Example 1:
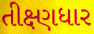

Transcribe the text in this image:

તીક્ષ્ણધાર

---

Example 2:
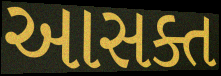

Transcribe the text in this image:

આસક્ત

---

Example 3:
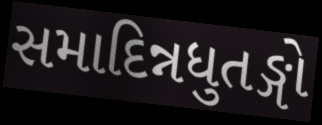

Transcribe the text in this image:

સમાદિન્નધુતઙ્ગો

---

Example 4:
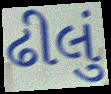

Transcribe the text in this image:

ઢીલું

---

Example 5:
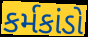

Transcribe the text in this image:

કર્મકાંડો